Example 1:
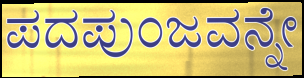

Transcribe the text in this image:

ಪದಪುಂಜವನ್ನೇ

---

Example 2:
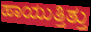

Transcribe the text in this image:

ಹಾಯುತ್ತಿತ್ತು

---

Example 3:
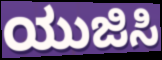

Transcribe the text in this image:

ಯುಜಿಸಿ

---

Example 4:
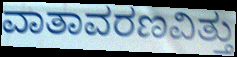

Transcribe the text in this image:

ವಾತಾವರಣವಿತ್ತು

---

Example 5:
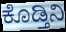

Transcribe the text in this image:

ಕೊಡ್ತಿನಿ